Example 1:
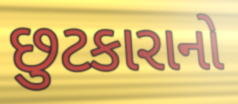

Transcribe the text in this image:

છુટકારાનો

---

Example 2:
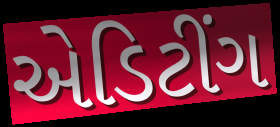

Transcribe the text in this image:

એડિટીંગ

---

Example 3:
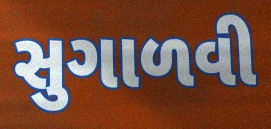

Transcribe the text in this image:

સુગાળવી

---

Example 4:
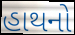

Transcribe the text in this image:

હાથનો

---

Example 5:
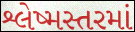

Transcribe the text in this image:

શ્લેષ્મસ્તરમાં